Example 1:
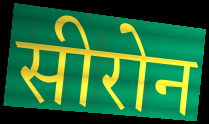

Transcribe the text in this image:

सीरोन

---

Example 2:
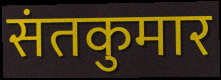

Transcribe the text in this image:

संतकुमार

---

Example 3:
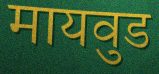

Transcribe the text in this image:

मायवुड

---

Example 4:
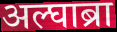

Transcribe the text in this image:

अल्घाब्रा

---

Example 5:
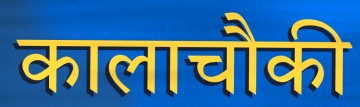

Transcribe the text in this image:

कालाचौकी